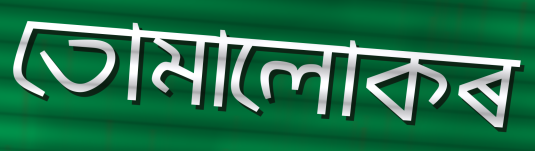
তোমালোকৰ